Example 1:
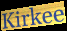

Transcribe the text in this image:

Kirkee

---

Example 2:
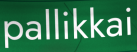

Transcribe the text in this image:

pallikkai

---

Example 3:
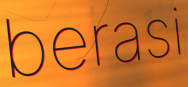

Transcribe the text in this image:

berasi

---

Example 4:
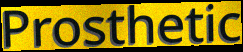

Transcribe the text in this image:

Prosthetic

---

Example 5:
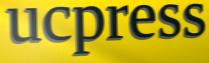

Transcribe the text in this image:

ucpress